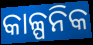
କାଳ୍ପନିକ